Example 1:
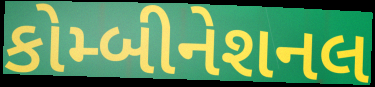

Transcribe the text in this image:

કોમ્બીનેશનલ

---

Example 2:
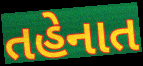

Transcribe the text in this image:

તહેનાત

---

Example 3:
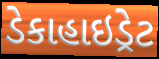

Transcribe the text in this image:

ડેકાહાઇડ્રેટ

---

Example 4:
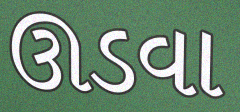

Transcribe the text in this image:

ઊડવા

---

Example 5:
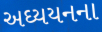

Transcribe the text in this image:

અઘ્યયનના